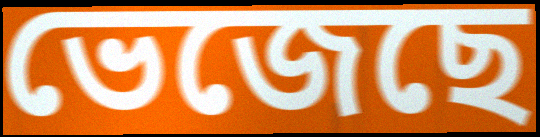
ভেজেছে